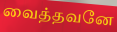
வைத்தவனே